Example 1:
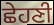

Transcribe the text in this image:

ਛੇਹਣੀ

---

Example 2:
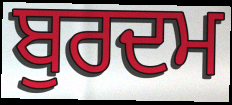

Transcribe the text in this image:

ਬੁਰਦਮ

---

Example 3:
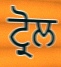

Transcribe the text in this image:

ਟ੍ਰੋਲ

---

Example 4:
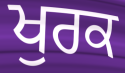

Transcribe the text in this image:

ਖੁਰਕ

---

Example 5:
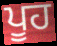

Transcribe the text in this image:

ਪੂਹ